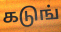
கடுங்